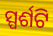
ସ୍ପର୍ଶଟି